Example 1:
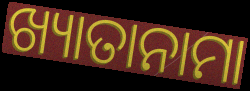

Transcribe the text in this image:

ଖ୍ୟାତାନାମା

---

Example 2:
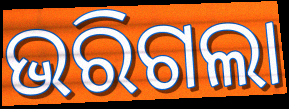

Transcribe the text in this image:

ଭରିଗଲା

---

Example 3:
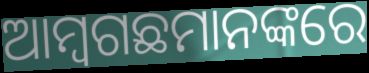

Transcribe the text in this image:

ଆମ୍ବଗଛମାନଙ୍କରେ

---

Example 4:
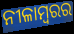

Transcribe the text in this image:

ନୀଳାମ୍ବରର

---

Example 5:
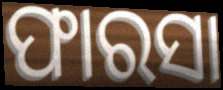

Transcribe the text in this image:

ଫାରସା